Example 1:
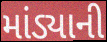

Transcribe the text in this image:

માંડ્યાની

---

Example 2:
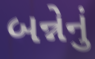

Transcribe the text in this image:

બન્નેનું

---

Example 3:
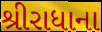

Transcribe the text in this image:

શ્રીરાધાના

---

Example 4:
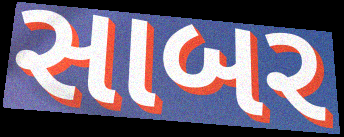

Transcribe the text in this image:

સાબર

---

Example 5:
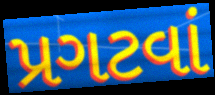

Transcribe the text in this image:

પ્રગટવાં